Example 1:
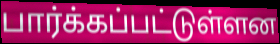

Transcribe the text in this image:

பார்க்கப்பட்டுள்ளன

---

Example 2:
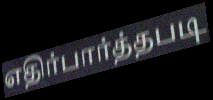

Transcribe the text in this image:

எதிர்பார்த்தபடி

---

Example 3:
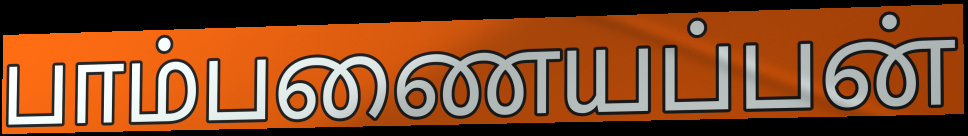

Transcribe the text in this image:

பாம்பணையப்பன்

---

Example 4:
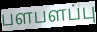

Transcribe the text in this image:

பளபளப்பு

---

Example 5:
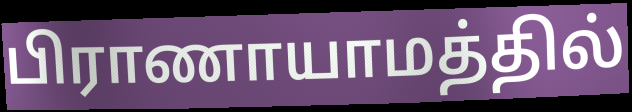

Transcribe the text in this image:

பிராணாயாமத்தில்